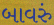
બાવરું